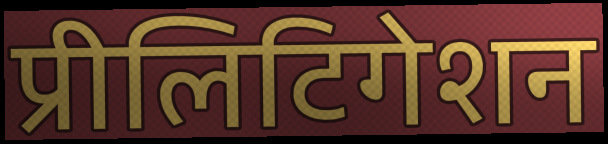
प्रीलिटिगेशन